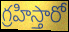
గ్రహిస్తారో